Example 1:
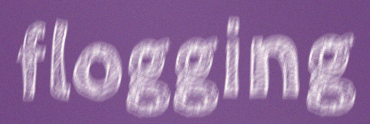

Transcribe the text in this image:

flogging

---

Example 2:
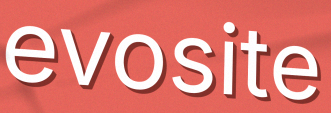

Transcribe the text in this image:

evosite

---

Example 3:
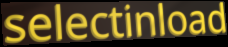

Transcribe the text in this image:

selectinload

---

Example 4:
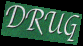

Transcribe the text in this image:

DRUG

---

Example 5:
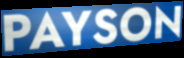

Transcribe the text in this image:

PAYSON